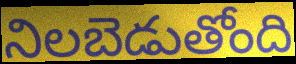
నిలబెడుతోంది